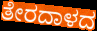
ತೇರದಾಳದ